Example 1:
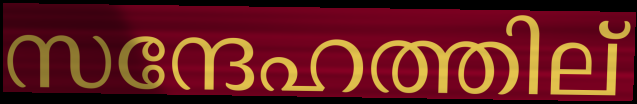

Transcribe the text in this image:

സന്ദേഹത്തില്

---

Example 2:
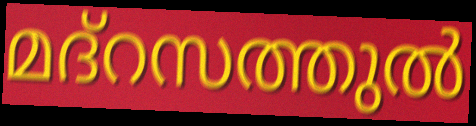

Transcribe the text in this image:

മദ്റസത്തുൽ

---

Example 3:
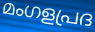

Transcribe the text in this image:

മംഗളപ്രദ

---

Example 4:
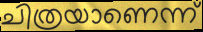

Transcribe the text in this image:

ചിത്രയാണെന്ന്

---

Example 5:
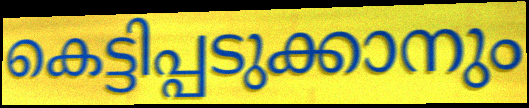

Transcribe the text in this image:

കെട്ടിപ്പടുക്കാനും